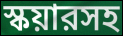
স্কয়ারসহ